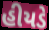
હીયડે